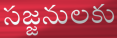
సజ్జనులకు